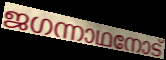
ജഗന്നാഥനോട്